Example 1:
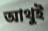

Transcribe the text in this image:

আথুই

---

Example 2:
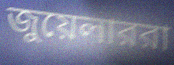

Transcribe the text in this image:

জুয়েলাররা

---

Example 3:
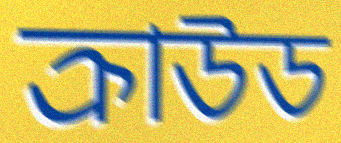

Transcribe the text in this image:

ক্রাউড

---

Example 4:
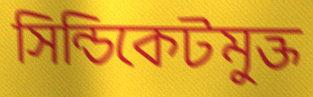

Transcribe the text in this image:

সিন্ডিকেটমুক্ত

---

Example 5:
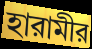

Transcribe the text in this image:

হারামীর